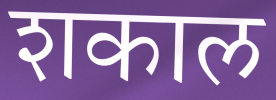
शकाल